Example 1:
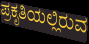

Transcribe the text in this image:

ಪ್ರಕೃತಿಯಲ್ಲಿರುವ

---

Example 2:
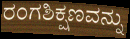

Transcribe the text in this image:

ರಂಗಶಿಕ್ಷಣವನ್ನು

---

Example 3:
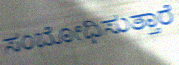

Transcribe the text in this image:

ಸಂಬೋಧಿಸುತ್ತಾರೆ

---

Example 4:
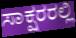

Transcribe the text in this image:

ಸಾಕ್ಷರರಲ್ಲಿ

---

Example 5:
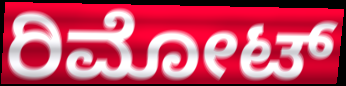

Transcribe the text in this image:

ರಿಮೋಟ್